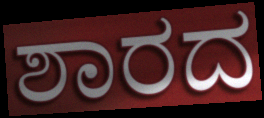
ಶಾರದ